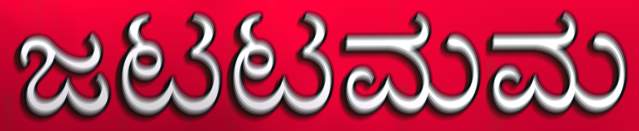
ಜಟಟಮಮ